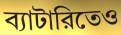
ব্যাটারিতেও